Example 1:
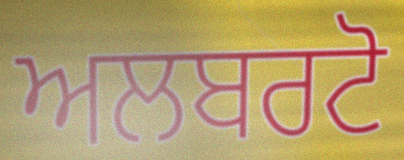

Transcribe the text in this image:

ਅਲਬਰਟੋ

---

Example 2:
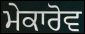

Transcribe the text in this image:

ਮੇਕਾਰੋਵ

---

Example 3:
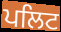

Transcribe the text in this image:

ਪਲਿਟ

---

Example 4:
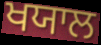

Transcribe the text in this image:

ਖਯਾਲ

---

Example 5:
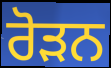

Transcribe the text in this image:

ਰੋੜਨ